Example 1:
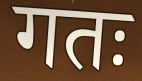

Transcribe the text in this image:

गतः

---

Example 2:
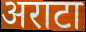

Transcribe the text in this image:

अराटा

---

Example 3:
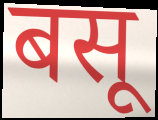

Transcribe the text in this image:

बसू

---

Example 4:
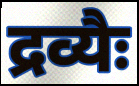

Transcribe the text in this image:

द्रव्यैः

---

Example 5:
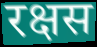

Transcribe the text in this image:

रक्षस